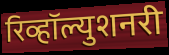
रिव्हॉल्युशनरी